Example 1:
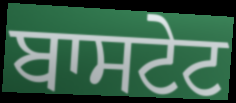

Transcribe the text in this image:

ਬਾਸਟੇਟ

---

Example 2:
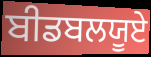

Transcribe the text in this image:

ਬੀਡਬਲਯੂਏ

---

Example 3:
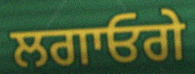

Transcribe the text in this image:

ਲਗਾਓਗੇ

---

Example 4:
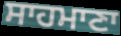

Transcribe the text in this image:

ਸਾਹਮਾਣਾ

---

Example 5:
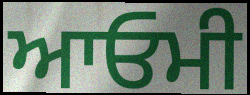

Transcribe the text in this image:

ਆਓਮੀ